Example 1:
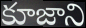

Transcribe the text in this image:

కూజాని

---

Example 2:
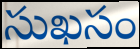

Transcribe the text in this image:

సుఖసం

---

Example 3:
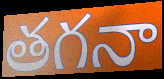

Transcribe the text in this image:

తగనా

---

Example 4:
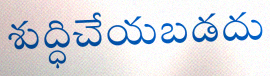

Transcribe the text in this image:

శుద్ధిచేయబడదు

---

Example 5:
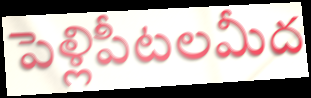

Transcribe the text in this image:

పెళ్లిపీటలమీద